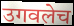
उगवलेच